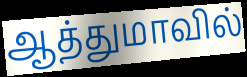
ஆத்துமாவில்